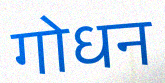
गोधन